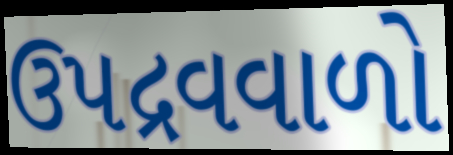
ઉપદ્રવવાળો